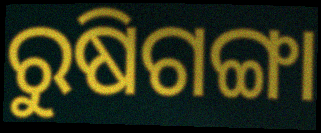
ରୁଷିଗଙ୍ଗା